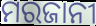
ମରଜାନୀ